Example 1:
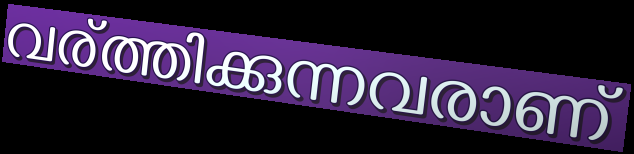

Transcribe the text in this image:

വര്ത്തിക്കുന്നവരാണ്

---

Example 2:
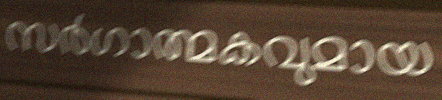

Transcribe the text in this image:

സർഗാത്മകവുമായ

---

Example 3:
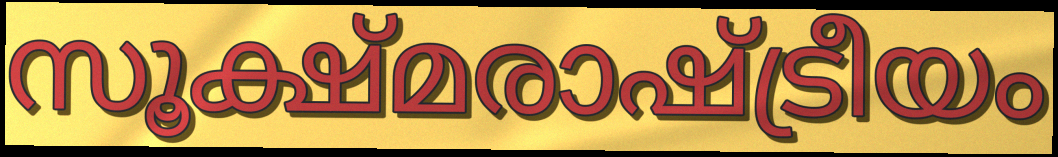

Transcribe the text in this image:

സൂക്ഷ്മരാഷ്ട്രീയം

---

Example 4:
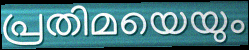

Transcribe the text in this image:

പ്രതിമയെയും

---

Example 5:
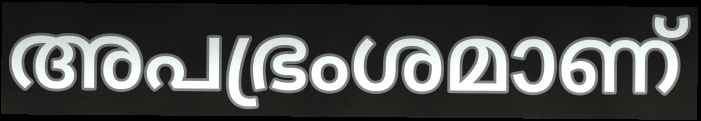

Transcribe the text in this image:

അപഭ്രംശമാണ്